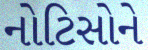
નોટિસોને